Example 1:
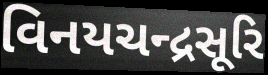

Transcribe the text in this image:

વિનયચન્દ્રસૂરિ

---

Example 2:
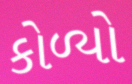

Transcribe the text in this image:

કોળ્યો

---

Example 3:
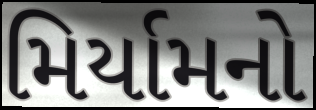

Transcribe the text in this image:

મિર્યામનો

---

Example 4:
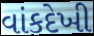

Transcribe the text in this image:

વાંકદેખી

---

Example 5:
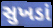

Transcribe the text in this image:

સુખડાં